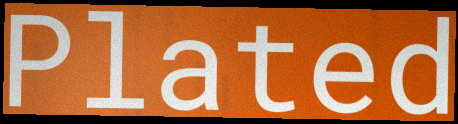
Plated